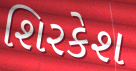
શિરકેશ